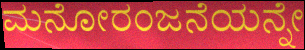
ಮನೋರಂಜನೆಯನ್ನೇ